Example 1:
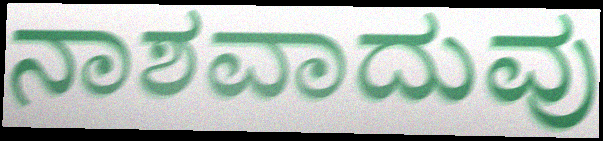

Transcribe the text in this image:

ನಾಶವಾದುವು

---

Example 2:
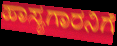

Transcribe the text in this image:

ಹಾಸ್ಯಗಾರನಿಗೆ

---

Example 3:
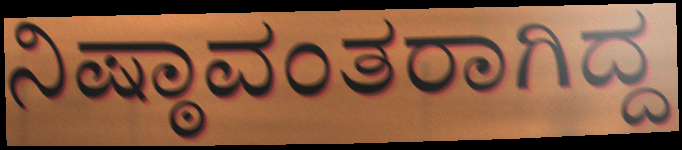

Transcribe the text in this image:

ನಿಷ್ಠಾವಂತರಾಗಿದ್ದ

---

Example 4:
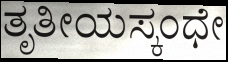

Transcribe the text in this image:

ತೃತೀಯಸ್ಕಂಧೇ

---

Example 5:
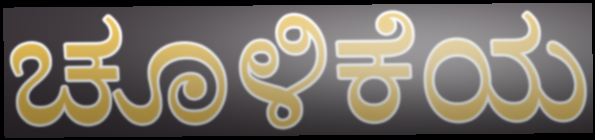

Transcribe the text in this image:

ಚೂಳಿಕೆಯ